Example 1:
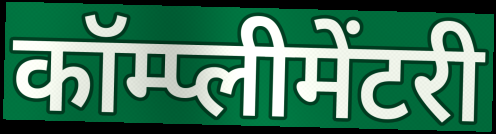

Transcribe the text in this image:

कॉम्प्लीमेंटरी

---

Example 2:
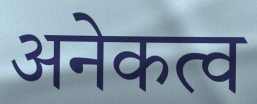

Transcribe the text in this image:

अनेकत्व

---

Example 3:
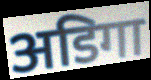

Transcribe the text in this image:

अडिगा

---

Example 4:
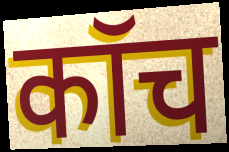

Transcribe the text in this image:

कॉच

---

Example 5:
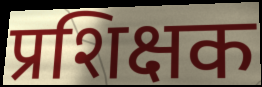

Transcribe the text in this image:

प्रशिक्षक